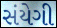
સંયેગી